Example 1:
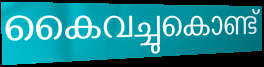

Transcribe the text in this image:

കൈവച്ചുകൊണ്ട്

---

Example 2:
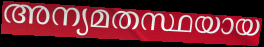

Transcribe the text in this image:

അന്യമതസ്ഥയായ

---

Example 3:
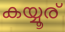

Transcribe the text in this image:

കയ്യൂര്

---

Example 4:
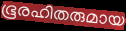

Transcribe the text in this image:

ഭൂരഹിതരുമായ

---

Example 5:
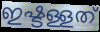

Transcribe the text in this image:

ഇഷ്ടള്ളത്